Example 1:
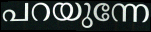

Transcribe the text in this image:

പറയുന്നേ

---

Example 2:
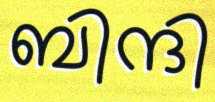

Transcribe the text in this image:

ബിന്ദി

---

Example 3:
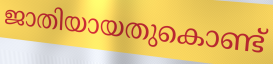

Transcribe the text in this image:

ജാതിയായതുകൊണ്ട്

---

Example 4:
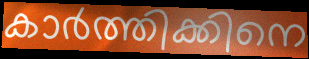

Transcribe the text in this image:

കാർത്തിക്കിനെ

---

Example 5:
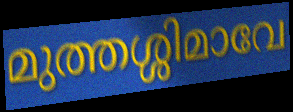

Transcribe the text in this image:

മുത്തശ്ശിമാവേ